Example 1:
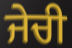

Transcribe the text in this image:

ਜੇਚੀ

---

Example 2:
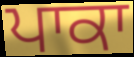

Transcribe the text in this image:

ਪਾਕਾ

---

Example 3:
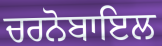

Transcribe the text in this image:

ਚਰਨੋਬਾਇਲ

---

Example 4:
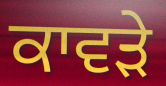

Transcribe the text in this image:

ਕਾਵੜੇ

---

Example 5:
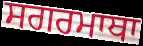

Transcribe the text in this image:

ਸਗਰਮਾਥਾ